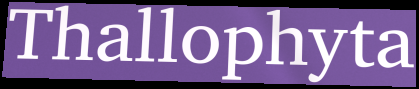
Thallophyta